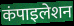
कंपाइलेशन